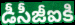
డీసీజీఐకి